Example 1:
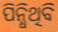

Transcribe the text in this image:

ପିନ୍ଧିଥିବି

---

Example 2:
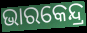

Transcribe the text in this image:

ଭାରକେନ୍ଦ୍ର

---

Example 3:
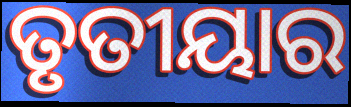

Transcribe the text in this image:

ତୃତୀୟାର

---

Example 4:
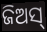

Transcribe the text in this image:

ଜିଅସ୍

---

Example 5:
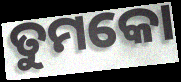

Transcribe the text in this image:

ତୁମକୋ